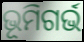
ଭୂମିଗର୍ଭ